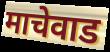
माचेवाड